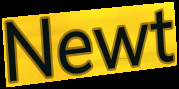
Newt